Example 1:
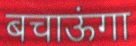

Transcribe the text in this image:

बचाऊंगा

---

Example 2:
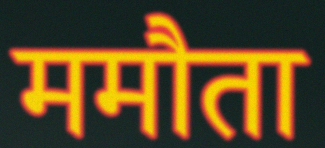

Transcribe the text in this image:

ममौता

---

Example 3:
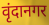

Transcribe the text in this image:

वृंदानगर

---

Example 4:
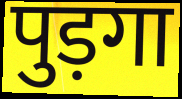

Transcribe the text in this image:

पुड़गा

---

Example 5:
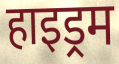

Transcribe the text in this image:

हाइड्रम